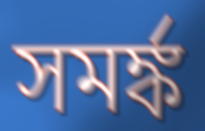
সমর্ঙ্ক